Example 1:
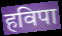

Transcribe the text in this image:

हविपा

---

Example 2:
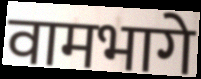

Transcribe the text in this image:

वामभागे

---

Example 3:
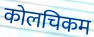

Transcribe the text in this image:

कोलचिकम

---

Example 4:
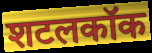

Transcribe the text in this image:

शटलकॉक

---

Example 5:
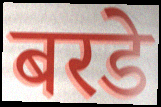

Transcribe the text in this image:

बरडे